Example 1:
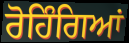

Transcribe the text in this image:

ਰੋਹਿੰਗਿਆਂ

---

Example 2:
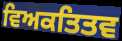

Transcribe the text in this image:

ਵਿਅਕਤਿਤਵ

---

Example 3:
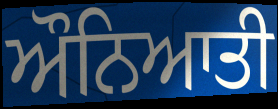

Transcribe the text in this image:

ਔਨਿਆਤੀ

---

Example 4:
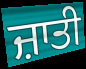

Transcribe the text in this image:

ਜ਼ਾਤੀ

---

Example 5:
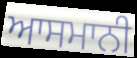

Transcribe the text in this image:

ਆਸਮਾਨੀ